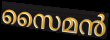
സൈമൻ